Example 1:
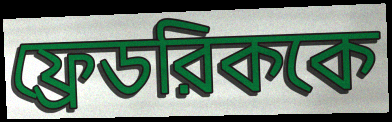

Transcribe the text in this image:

ফ্রেডরিককে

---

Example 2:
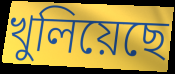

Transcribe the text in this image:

খুলিয়েছে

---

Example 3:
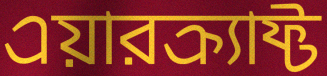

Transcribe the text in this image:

এয়ারক্র্যাফ্ট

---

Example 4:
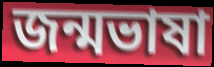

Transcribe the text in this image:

জন্মভাষা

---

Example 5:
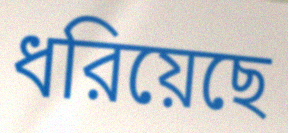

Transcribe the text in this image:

ধরিয়েছে